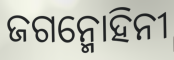
ଜଗନ୍ମୋହିନୀ